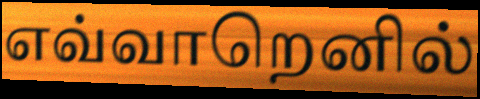
எவ்வாறெனில்